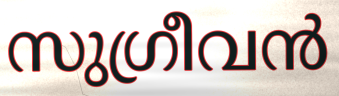
സുഗ്രീവൻ